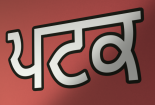
ਪਟਕ